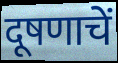
दूषणाचें